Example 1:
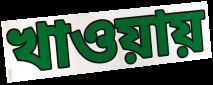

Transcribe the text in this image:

খাওয়ায়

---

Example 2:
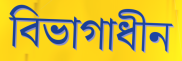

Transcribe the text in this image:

বিভাগাধীন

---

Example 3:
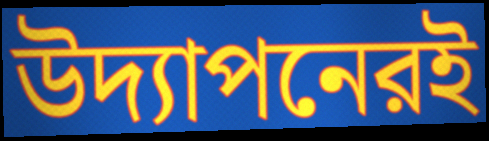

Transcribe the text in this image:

উদ্যাপনেরই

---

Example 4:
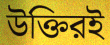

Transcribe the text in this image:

উক্তিরই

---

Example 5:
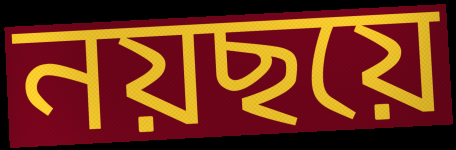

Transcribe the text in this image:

নয়ছয়ে